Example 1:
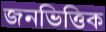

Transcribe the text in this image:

জনভিত্তিক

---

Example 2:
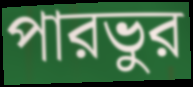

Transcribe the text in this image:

পারভুর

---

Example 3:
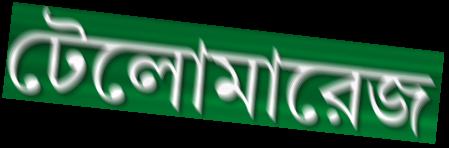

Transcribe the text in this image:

টেলোমারেজ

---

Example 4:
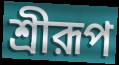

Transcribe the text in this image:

শ্রীরূপ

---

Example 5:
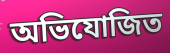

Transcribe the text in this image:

অভিযোজিত